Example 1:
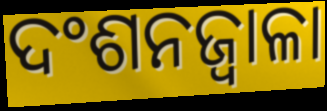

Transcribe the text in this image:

ଦଂଶନଜ୍ୱାଳା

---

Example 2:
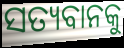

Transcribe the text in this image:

ସତ୍ୟବାନକୁ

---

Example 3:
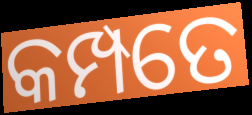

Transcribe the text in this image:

କମ୍ପତେ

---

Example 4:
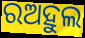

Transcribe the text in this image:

ରଅହୁଲ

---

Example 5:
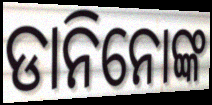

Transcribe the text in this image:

ଡାନିନୋଙ୍କ